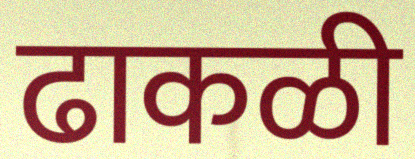
ढाकळी